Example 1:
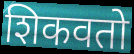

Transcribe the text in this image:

शिकवतो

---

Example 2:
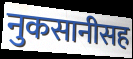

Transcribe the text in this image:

नुकसानीसह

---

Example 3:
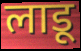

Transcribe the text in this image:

लाडू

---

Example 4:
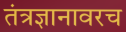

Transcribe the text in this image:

तंत्रज्ञानावरच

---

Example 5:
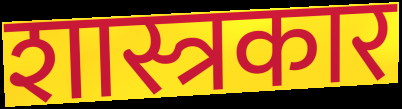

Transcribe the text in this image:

शास्त्रकार